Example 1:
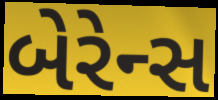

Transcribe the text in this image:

બેરેન્સ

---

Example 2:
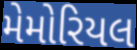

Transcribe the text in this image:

મેમોરિયલ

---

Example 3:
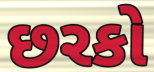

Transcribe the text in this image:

છરકો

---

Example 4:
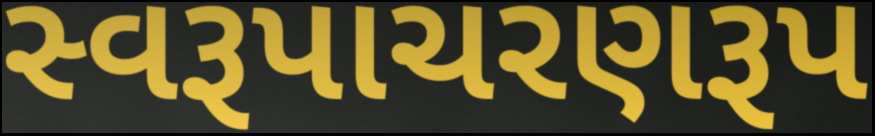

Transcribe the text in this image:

સ્વરૂપાચરણરૂપ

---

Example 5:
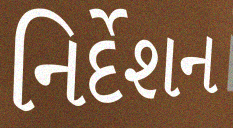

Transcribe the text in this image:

નિર્દેશન